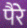
पैरे